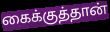
கைக்குத்தான்